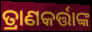
ତ୍ରାଣକର୍ତ୍ତାଙ୍କ